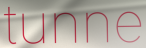
tunne